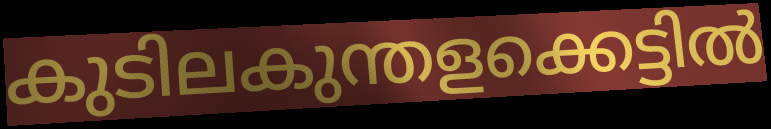
കുടിലകുന്തളക്കെട്ടിൽ